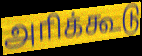
அரிக்கூடு